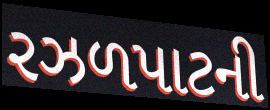
રઝળપાટની